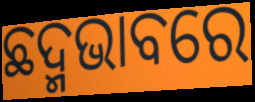
ଛଦ୍ମଭାବରେ